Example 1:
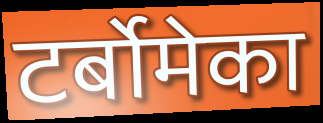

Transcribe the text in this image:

टर्बोमेका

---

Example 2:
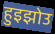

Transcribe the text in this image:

हुइझोउ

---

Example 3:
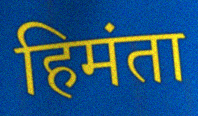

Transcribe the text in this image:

हिमंता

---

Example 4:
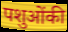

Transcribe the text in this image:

पशुओंकी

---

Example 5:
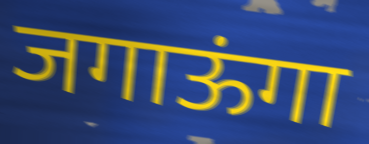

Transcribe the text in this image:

जगाऊंगा